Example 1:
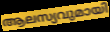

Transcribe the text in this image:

ആലസ്യവുമായി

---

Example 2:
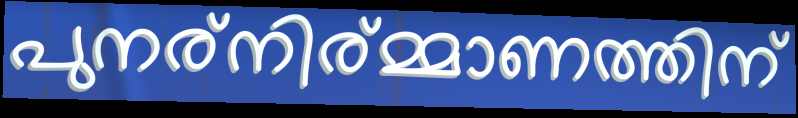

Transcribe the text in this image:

പുനര്നിര്മ്മാണത്തിന്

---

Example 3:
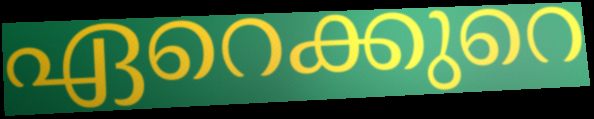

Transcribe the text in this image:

ഏറെക്കുറെ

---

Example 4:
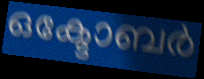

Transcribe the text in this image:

ഒക്ടോബർ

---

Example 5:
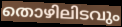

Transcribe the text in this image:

തൊഴിലിടവും